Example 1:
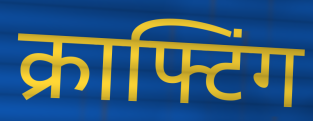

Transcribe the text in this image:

क्राफ्टिंग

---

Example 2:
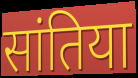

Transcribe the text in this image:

सांतिया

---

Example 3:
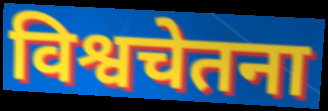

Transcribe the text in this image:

विश्वचेतना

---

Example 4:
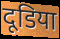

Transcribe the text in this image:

दूडिया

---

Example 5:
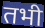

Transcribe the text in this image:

तभी